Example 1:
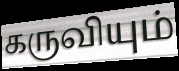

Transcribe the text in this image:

கருவியும்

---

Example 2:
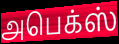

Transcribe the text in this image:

அபெக்ஸ்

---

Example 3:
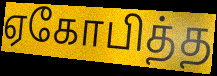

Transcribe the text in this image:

ஏகோபித்த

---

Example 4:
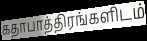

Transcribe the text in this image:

கதாபாத்திரங்களிடம்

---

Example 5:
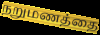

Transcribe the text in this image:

நறுமணத்தை